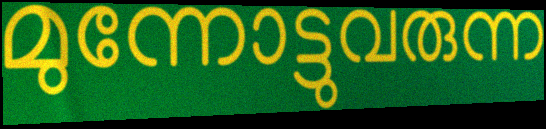
മുന്നോട്ടുവരുന്ന